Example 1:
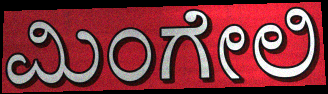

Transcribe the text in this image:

ಮಿಂಗೇಲಿ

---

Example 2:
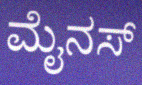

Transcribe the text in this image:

ಮೈನಸ್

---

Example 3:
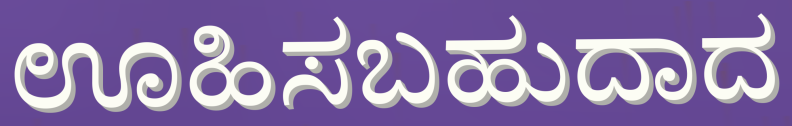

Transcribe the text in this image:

ಊಹಿಸಬಹುದಾದ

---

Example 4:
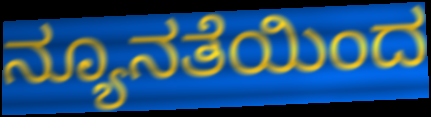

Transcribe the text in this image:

ನ್ಯೂನತೆಯಿಂದ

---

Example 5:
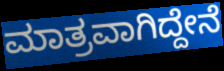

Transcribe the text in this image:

ಮಾತ್ರವಾಗಿದ್ದೇನೆ